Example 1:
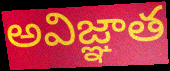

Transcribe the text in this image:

అవిజ్ఞాత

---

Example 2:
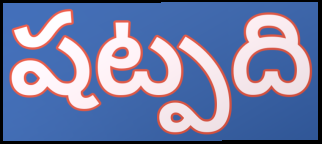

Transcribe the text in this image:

షట్పది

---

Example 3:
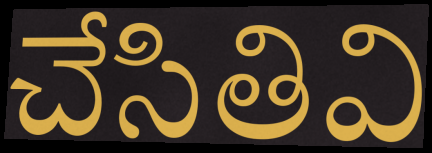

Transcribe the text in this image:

చేసితివి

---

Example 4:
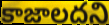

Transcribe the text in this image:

కాజాలదని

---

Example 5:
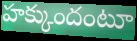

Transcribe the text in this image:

హక్కుందంటూ